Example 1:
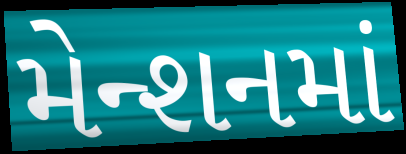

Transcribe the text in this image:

મેન્શનમાં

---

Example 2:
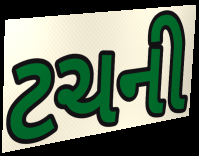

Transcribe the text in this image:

ટચની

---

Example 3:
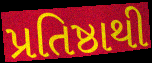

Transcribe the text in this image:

પ્રતિષ્ઠાથી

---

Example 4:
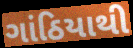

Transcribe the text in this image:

ગાંઠિયાથી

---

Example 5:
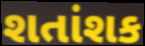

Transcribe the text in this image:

શતાંશક